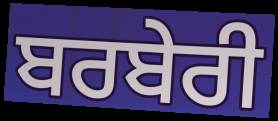
ਬਰਬੇਰੀ